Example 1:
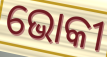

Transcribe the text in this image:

ଭୋକୀ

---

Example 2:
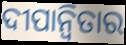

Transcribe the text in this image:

ଦୀପାନ୍ୱିତାର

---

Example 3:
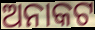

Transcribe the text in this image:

ଅନାକଟ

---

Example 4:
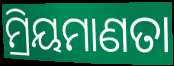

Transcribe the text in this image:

ମ୍ରିୟମାଣତା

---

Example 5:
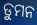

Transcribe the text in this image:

ଡୁମନ